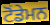
ਟੋਂਡੇਮਨ